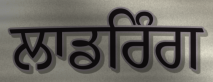
ਲਾਡਰਿੰਗ